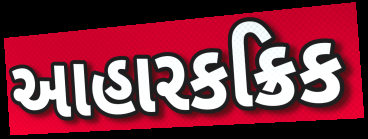
આહારકક્રિક